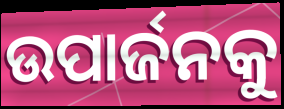
ଉପାର୍ଜନକୁ